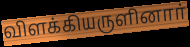
விளக்கியருளினார்